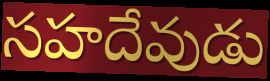
సహదేవుడు